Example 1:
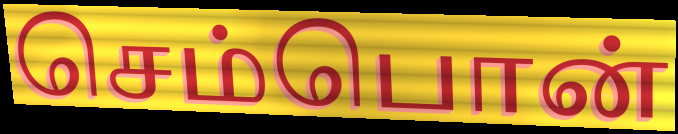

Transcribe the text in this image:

செம்பொன்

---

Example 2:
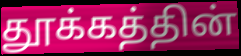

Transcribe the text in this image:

தூக்கத்தின்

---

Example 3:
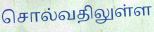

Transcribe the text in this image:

சொல்வதிலுள்ள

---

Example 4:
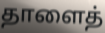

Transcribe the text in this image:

தாளைத்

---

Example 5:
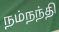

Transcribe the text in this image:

நம்நந்தி